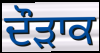
ਦੌੜਾਕ